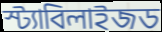
স্ট্যাবিলাইজড